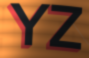
YZ